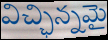
విచ్ఛిన్నమై